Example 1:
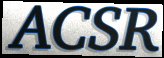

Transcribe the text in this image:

ACSR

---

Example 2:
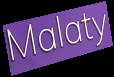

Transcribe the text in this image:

Malaty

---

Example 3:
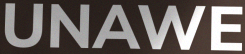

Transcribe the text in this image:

UNAWE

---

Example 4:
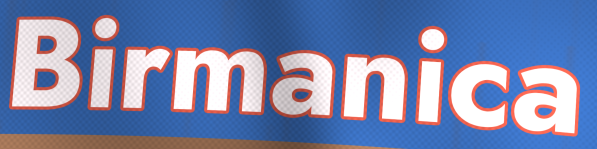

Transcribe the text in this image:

Birmanica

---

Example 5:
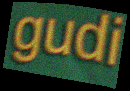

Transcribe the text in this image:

gudi